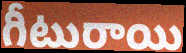
గీటురాయి